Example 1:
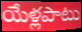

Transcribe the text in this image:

యేళ్లపాటు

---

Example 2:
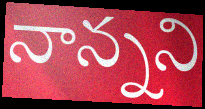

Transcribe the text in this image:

నాన్నని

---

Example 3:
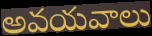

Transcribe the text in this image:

అవయవాలు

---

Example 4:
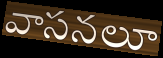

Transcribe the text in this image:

వాసనలూ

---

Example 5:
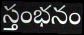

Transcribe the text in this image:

స్తంభనం